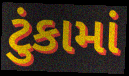
ટુંકામાં